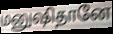
மனுஷிதானே